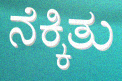
ನೆಕ್ಕಿತು